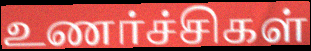
உணர்ச்சிகள்